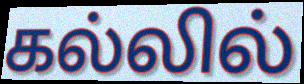
கல்லில்